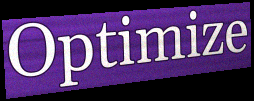
Optimize